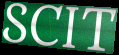
SCIT